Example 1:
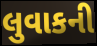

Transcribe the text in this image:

લુવાકની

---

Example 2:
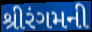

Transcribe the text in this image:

શ્રીરંગમની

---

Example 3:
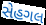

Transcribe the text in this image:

સેહગલ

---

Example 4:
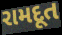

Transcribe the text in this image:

રામદૂત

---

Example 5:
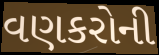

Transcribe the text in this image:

વણકરોની